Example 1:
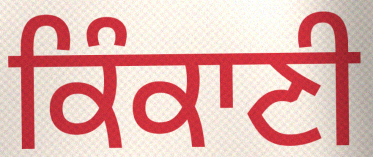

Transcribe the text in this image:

ਕਿੰਕਾਣੀ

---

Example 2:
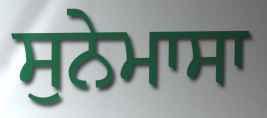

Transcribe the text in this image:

ਸੁਨੇਮਾਸਾ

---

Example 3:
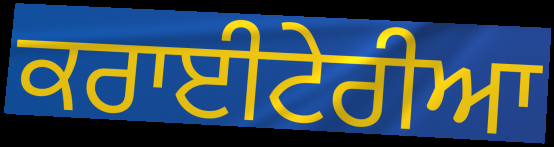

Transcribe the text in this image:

ਕਰਾਈਟੇਰੀਆ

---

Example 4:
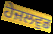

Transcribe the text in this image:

ਹੇਜ਼ਲਵੁਡ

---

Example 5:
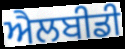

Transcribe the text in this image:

ਐਲਬੀਡੀ